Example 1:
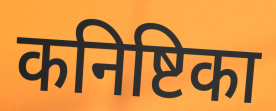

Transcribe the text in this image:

कनिष्टिका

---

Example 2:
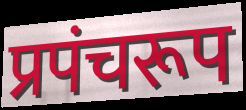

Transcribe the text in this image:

प्रपंचरूप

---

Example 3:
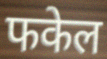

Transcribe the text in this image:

फकेल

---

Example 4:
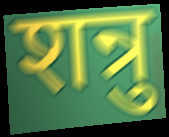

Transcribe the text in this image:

शन्रु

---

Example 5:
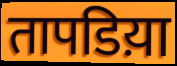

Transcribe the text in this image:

तापडिय़ा